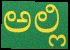
ಅಲ್ಲಿ